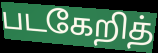
படகேறித்